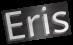
Eris